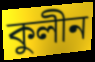
কুলীন